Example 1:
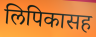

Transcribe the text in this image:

लिपिकासह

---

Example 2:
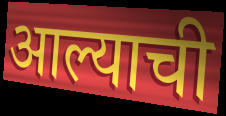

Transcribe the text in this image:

आल्याची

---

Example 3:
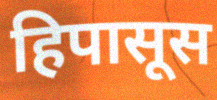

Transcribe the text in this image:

हिपासूस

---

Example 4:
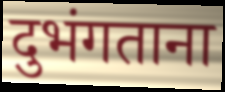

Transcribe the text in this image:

दुभंगताना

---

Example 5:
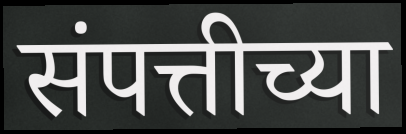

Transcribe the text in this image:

संपत्तीच्या